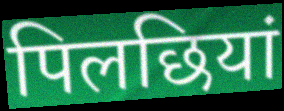
पिलछियां